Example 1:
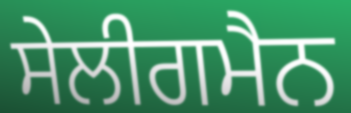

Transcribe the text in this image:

ਸੇਲੀਗਮੈਨ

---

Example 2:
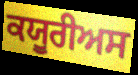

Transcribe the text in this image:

ਕਯੂਰੀਅਸ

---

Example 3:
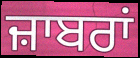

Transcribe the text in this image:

ਜ਼ਾਬਰਾਂ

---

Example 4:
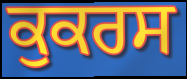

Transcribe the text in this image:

ਕੁਕਰਸ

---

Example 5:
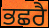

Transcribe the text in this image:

ਭਛਰੈ